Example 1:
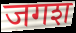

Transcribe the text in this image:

जगश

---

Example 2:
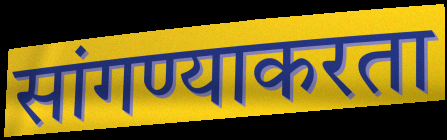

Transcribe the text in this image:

सांगण्याकरता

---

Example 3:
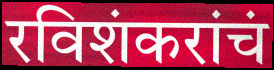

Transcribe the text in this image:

रविशंकरांचं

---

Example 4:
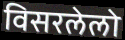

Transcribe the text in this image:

विसरलेलो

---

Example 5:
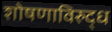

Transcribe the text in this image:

शोषणाविरुद्ध